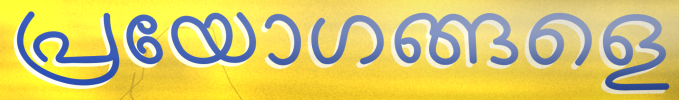
പ്രയോഗങ്ങളെ